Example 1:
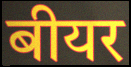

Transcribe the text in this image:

बीयर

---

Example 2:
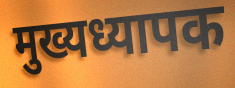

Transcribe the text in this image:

मुख्यध्यापक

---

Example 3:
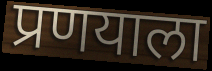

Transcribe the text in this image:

प्रणयाला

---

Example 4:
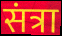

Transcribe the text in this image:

संत्रा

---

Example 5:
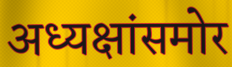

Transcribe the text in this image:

अध्यक्षांसमोर